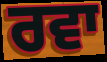
ਰਵਾ